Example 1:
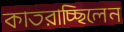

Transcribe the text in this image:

কাতরাচ্ছিলেন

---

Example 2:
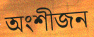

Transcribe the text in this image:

অংশীজন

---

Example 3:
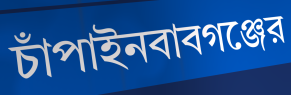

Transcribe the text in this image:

চাঁপাইনবাবগঞ্জের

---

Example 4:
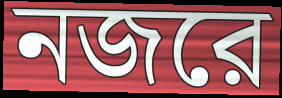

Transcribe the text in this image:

নজরে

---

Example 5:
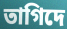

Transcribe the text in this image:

তাগিদে